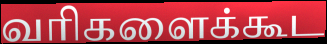
வரிகளைக்கூட